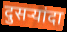
दुसर्‍यांदा